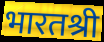
भारतश्री